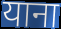
याना